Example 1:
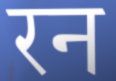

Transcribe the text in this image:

रन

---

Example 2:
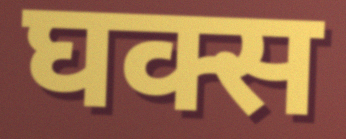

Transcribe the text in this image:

घक्स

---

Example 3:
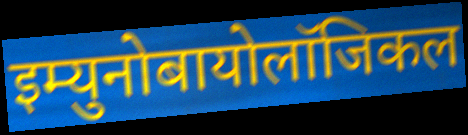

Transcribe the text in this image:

इम्युनोबायोलॉजिकल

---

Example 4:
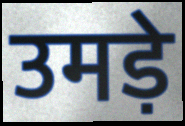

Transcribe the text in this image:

उमड़े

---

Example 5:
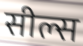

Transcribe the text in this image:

सील्स